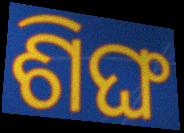
ଶିଙ୍ଘ